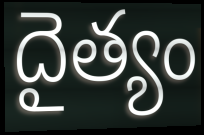
దైత్యం